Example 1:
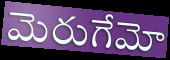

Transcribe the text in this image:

మెరుగేమో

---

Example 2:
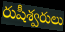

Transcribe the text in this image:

రుషీశ్వరులు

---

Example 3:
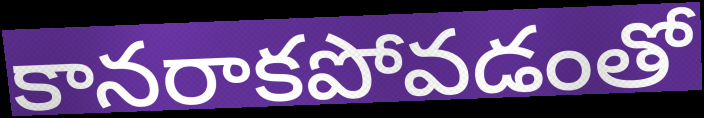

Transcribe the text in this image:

కానరాకపోవడంతో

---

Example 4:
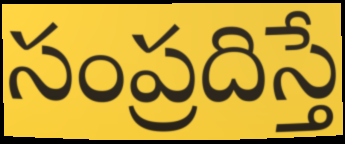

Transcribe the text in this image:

సంప్రదిస్తే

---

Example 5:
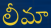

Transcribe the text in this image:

లీమా